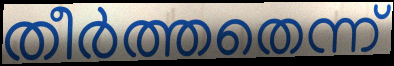
തീർത്തതെന്ന്